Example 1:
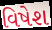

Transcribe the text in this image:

વિષેશ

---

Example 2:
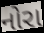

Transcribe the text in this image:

નોરા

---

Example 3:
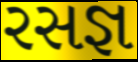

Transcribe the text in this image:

રસજ્ઞ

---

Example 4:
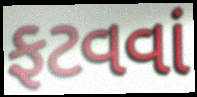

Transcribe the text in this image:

ફટવવાં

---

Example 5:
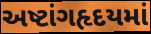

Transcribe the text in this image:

અષ્ટાંગહૃદયમાં